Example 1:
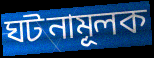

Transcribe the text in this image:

ঘটনামূলক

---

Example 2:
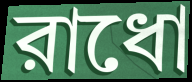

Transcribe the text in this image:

রাধো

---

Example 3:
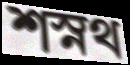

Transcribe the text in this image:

শস্নথ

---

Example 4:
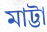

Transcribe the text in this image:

মাট্টা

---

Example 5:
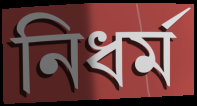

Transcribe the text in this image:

নিধর্ম